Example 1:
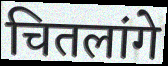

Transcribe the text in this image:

चितलांगे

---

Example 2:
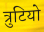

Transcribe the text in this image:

त्रुटियो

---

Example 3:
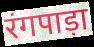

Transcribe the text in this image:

रंगपाड़ा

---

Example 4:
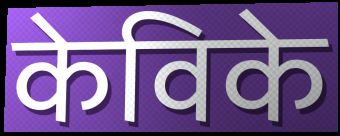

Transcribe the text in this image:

केविके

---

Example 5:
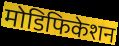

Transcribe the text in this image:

मोडिफिकेशन